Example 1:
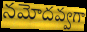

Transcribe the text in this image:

నమోదవ్వగా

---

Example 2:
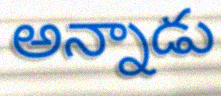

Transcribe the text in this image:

అన్నాడు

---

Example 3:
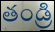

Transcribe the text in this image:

తండ్రి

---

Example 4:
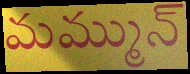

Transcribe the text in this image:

మమ్మున్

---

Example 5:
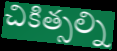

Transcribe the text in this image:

చికిత్సల్ని